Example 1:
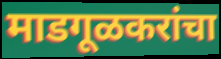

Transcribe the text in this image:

माडगूळकरांचा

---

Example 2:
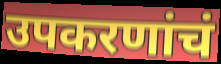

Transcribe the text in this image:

उपकरणांचं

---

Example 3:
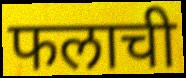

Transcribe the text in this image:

फलाची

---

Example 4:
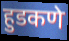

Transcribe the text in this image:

हुडकणे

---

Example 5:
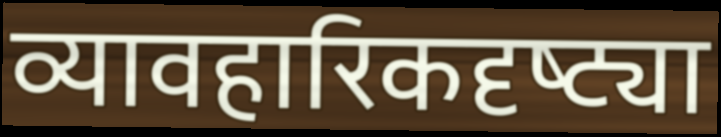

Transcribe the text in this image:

व्यावहारिकदृष्ट्या